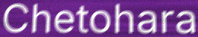
Chetohara